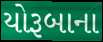
યોરૂબાના